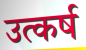
उत्कर्ष